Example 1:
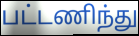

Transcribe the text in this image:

பட்டணிந்து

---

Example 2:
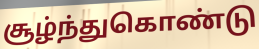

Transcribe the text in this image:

சூழ்ந்துகொண்டு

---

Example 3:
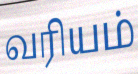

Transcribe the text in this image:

வரியம்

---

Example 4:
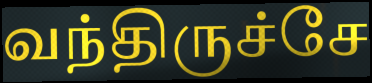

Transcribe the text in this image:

வந்திருச்சே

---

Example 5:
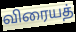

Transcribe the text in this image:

விரையத்